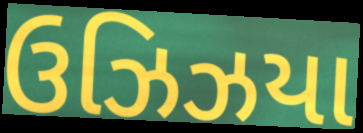
ઉઝિઝયા